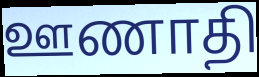
ஊணாதி